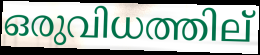
ഒരുവിധത്തില്